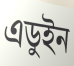
এডুইন